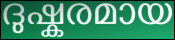
ദുഷ്കരമായ